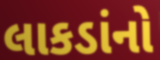
લાકડાંનો